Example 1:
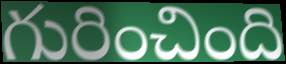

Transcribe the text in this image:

గురించింది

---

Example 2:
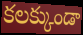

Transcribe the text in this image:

కలక్కుండా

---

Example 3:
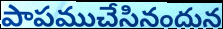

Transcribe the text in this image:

పాపముచేసినందున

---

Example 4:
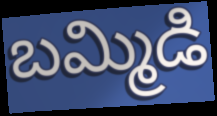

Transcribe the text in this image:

బమ్మిడి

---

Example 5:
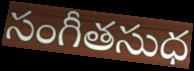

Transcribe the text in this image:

సంగీతసుధ